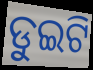
ଡୁଇଟି